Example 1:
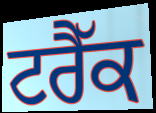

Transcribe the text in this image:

ਟਰੈੱਕ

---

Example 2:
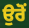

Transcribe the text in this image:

ਉਰੋਂ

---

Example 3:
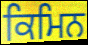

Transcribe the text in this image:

ਕਿਮਿਨ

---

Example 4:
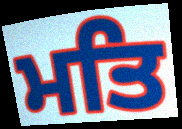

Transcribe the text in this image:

ਮਤਿ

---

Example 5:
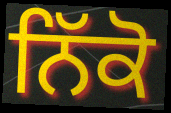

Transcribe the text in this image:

ਨਿੱਕੋ